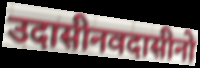
उदासीनवदासीनो